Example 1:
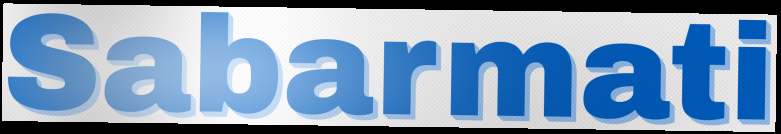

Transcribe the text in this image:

Sabarmati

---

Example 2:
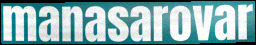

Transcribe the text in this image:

manasarovar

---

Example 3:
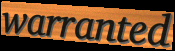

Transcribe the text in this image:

warranted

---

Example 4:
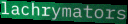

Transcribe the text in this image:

lachrymators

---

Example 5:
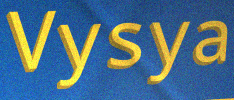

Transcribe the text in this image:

Vysya